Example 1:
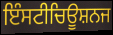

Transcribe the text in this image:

ਇੰਸਟੀਚਿਊਸ਼ਨਜ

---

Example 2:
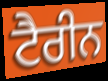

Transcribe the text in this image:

ਟੈਰੀਨ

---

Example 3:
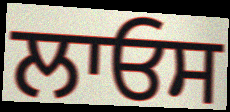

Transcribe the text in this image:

ਲਾਓਸ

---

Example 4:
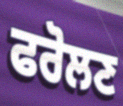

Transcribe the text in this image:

ਫਰੋਲਣ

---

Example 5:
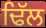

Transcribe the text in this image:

ਢਿੱਲ